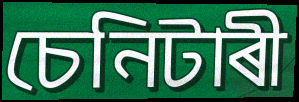
চেনিটাৰী